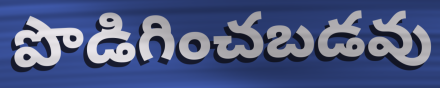
పొడిగించబడవు